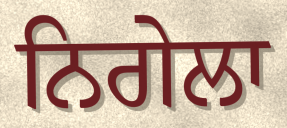
ਨਿਗੇਲਾ